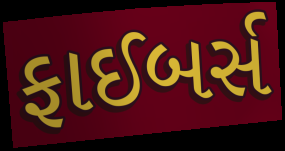
ફાઈબર્સ